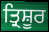
ਤ੍ਰਿਸ਼ੂਰ